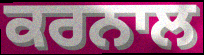
ਕਰਨਾਲ